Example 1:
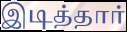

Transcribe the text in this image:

இடித்தார்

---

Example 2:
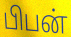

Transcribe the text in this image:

பிபன்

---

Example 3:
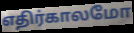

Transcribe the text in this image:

எதிர்காலமோ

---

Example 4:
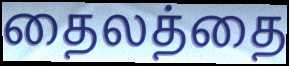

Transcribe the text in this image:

தைலத்தை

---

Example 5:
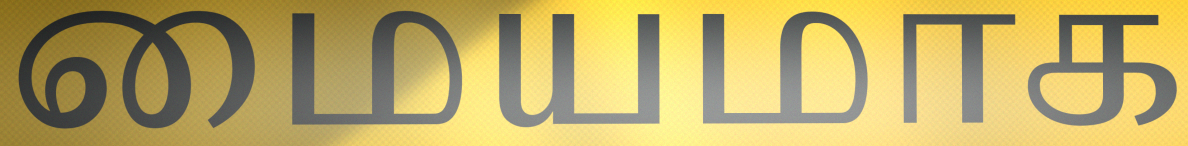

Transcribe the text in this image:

மையமாக